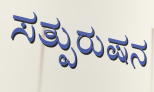
ಸತ್ಪುರುಷನ